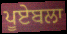
ਪੂਏਬਲਾ